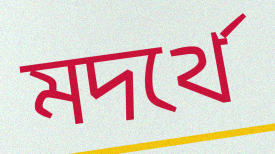
মদর্থে